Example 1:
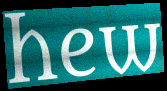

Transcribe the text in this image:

hew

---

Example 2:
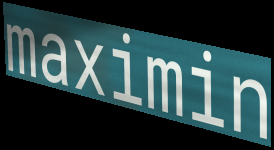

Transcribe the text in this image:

maximin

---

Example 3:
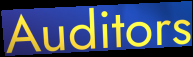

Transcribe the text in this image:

Auditors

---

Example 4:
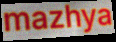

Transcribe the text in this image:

mazhya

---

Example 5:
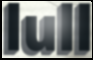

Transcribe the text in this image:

lull